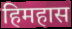
हिमहास